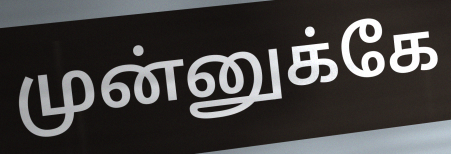
முன்னுக்கே